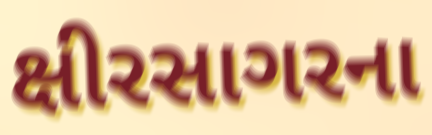
ક્ષીરસાગરના